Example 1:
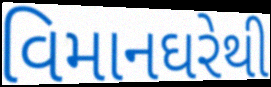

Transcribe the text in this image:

વિમાનઘરેથી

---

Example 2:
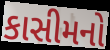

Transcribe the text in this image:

કાસીમનો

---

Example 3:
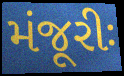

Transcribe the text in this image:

મંજૂરીઃ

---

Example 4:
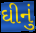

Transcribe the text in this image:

ઘીનું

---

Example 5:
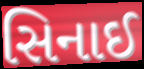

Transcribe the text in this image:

સિનાઈ